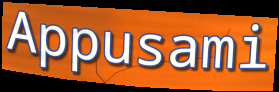
Appusami